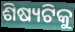
ଶିଷ୍ୟଟିକୁ